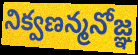
నిక్వణన్మనోజ్ఞ